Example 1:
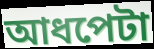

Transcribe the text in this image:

আধপেটা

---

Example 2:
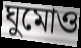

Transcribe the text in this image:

ঘুমোও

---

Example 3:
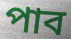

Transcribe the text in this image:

পাব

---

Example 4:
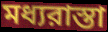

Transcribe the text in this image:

মধ্যরাস্তা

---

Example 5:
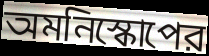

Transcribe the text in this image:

অমনিস্কোপের